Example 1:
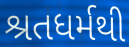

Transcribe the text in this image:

શ્રતધર્મથી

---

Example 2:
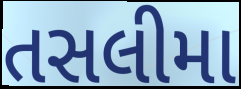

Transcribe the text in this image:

તસલીમા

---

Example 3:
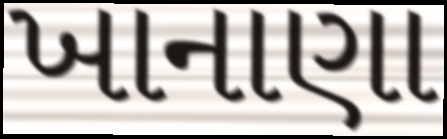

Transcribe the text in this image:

ખાનાણા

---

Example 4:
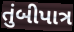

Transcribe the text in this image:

તુંબીપાત્ર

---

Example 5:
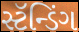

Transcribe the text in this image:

સ્ટૅન્ડિંગ